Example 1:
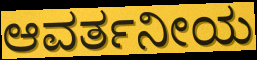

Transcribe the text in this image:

ಆವರ್ತನೀಯ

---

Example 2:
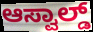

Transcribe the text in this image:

ಆಸ್ವಾಲ್ಡ್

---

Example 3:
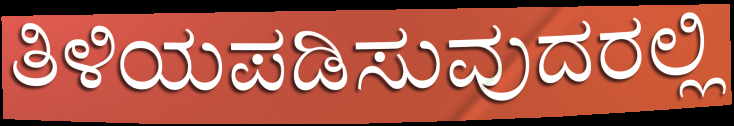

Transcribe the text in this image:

ತಿಳಿಯಪಡಿಸುವುದರಲ್ಲಿ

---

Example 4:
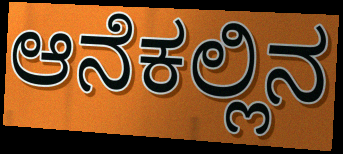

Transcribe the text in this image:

ಆನೆಕಲ್ಲಿನ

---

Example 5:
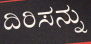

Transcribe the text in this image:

ದಿರಿಸನ್ನು